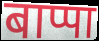
बाप्पा